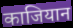
काजियान